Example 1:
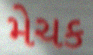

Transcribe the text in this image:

મેચક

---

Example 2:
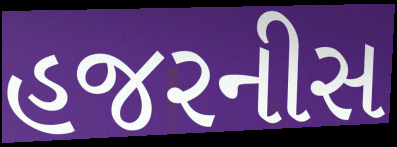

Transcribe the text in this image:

હજરનીસ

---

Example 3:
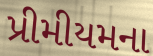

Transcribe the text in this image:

પ્રીમીયમના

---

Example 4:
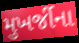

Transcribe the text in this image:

મુખર્જીના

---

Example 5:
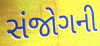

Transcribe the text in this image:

સંજોગની